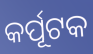
କର୍ପୂଟକ